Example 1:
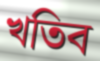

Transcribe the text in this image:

খতিব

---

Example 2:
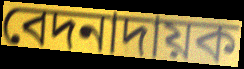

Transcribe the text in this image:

বেদনাদায়ক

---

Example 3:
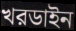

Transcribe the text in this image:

খরডাইন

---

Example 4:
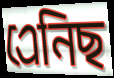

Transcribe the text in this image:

এেনিছ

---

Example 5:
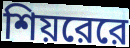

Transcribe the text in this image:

শিয়রেরে